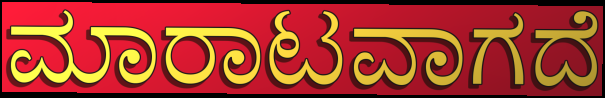
ಮಾರಾಟವಾಗದೆ